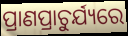
ପ୍ରାଣପ୍ରାଚୁର୍ଯ୍ୟରେ